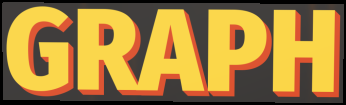
GRAPH